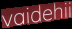
vaidehii